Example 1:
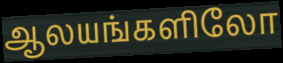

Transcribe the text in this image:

ஆலயங்களிலோ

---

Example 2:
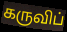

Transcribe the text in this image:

கருவிப்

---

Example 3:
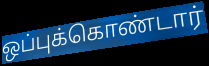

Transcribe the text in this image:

ஒப்புக்கொண்டார்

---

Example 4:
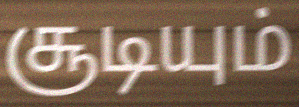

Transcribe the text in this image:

சூடியும்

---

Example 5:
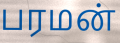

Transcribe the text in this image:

பரமன்